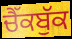
ਚੈੱਕਬੁੱਕ